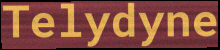
Telydyne